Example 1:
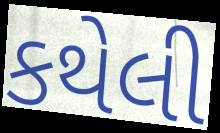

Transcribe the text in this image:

કથેલી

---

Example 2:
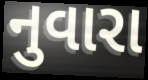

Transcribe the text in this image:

નુવારા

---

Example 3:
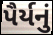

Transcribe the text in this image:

પૈર્યનું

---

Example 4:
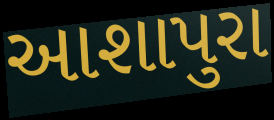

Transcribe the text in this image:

આશાપુરા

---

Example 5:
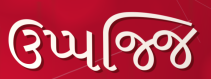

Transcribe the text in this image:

ઉપ્પજ્જિ